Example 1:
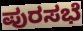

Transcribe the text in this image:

ಪುರಸಭೆ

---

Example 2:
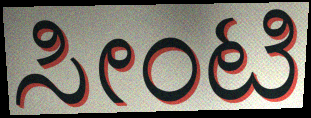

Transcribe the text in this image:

ಸೀಂಟಿ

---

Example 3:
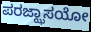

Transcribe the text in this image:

ಪರಜ್ಝಾಸಯೋ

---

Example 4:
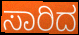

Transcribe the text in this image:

ಸಾರಿದ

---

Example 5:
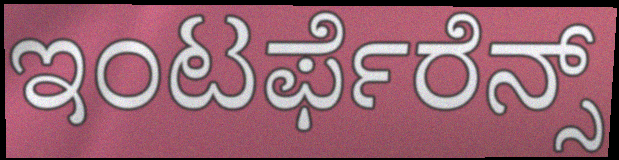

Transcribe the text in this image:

ಇಂಟರ್ಫೆರೆನ್ಸ್